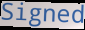
Signed